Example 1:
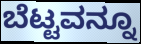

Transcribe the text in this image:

ಬೆಟ್ಟವನ್ನೂ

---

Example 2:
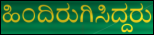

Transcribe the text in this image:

ಹಿಂದಿರುಗಿಸಿದ್ದರು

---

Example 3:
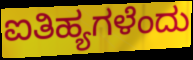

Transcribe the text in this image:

ಐತಿಹ್ಯಗಳೆಂದು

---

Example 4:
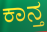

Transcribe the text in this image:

ಕಾನ್ತ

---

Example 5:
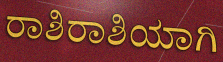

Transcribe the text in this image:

ರಾಶಿರಾಶಿಯಾಗಿ